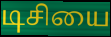
டிசியை